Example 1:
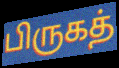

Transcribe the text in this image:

பிருகத்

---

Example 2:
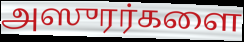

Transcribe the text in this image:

அஸுரர்களை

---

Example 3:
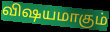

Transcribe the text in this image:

விஷயமாகும்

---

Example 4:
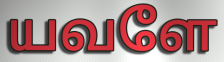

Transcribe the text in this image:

யவளே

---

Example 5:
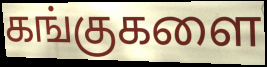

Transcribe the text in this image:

கங்குகளை